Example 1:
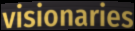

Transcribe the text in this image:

visionaries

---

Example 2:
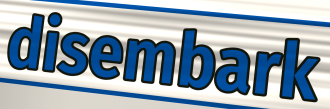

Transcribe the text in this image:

disembark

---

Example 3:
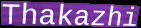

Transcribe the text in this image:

Thakazhi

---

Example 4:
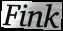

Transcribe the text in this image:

Fink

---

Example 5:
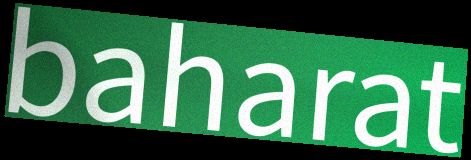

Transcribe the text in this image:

baharat